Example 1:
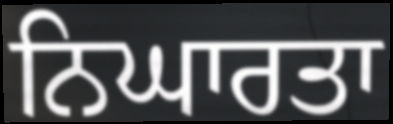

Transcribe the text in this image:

ਨਿਘਾਰਤਾ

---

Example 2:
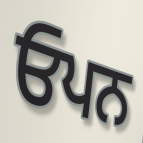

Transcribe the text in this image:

ਓਪਨ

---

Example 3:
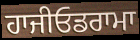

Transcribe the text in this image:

ਹਾਜੀਓਡਰਾਮਾ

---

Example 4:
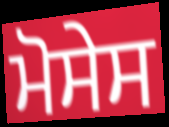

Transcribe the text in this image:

ਮੋਸੇਸ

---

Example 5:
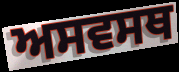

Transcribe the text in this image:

ਅਸਵਸਥ